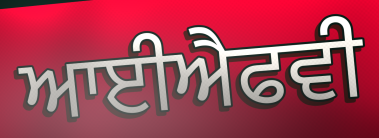
ਆਈਐਫਵੀ